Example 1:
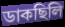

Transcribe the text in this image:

ডাকছিলি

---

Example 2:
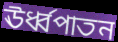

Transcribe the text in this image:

ঊর্ধ্বপাতন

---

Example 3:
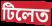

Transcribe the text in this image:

টিলেত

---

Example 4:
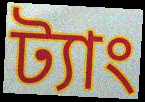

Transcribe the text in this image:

ট্যাং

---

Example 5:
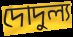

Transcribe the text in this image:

দোদুল্য